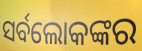
ସର୍ବଲୋକଙ୍କର